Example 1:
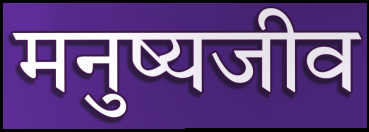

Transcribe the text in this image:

मनुष्यजीव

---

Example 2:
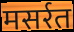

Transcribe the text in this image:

मसर्रत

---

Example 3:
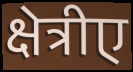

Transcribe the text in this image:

क्षेत्रीए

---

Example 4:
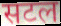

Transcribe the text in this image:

सटल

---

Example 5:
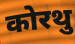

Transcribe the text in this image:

कोरथु